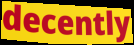
decently